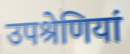
उपश्रेणियां